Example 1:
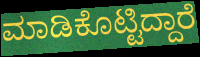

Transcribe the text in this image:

ಮಾಡಿಕೊಟ್ಟಿದ್ದಾರೆ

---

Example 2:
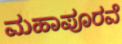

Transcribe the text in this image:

ಮಹಾಪೂರವೆ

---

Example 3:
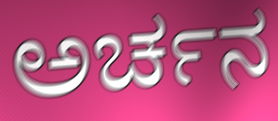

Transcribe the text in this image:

ಅರ್ಚನ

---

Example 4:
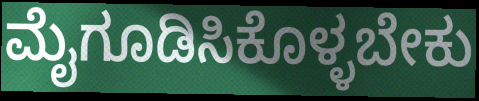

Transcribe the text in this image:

ಮೈಗೂಡಿಸಿಕೊಳ್ಳಬೇಕು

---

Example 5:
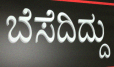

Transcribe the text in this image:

ಬೆಸೆದಿದ್ದು